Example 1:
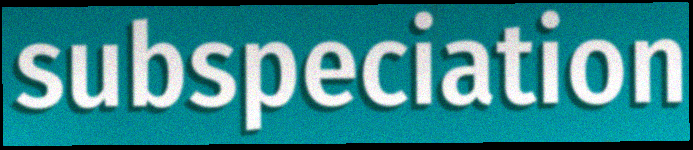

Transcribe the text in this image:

subspeciation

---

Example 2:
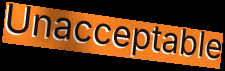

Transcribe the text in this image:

Unacceptable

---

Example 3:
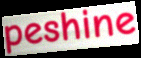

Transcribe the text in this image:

peshine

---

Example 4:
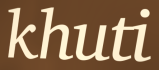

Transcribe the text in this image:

khuti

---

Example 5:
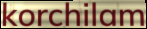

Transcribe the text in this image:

korchilam